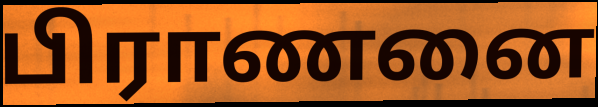
பிராணனை